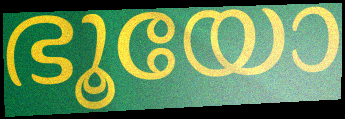
ഭൂയോ